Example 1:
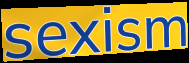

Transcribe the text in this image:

sexism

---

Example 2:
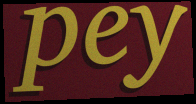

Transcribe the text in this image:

pey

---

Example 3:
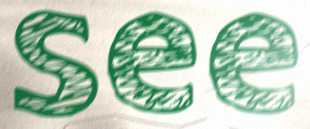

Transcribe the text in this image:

see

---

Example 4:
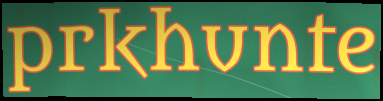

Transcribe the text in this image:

prkhunte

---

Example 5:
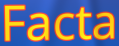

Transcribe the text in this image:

Facta